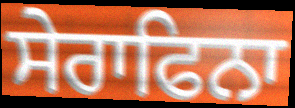
ਸੇਰਾਫਿਨਾ